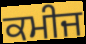
ਕਮੀਜ